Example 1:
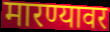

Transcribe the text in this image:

मारण्यावर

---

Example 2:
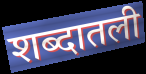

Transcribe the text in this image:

शब्दातली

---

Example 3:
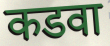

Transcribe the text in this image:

कडवा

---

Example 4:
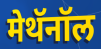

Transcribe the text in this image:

मेथॅनॉल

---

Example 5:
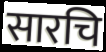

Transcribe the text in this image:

सारचि